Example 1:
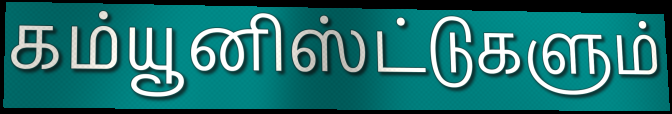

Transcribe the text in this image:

கம்யூனிஸ்ட்டுகளும்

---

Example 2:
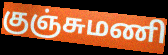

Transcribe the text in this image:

குஞ்சுமணி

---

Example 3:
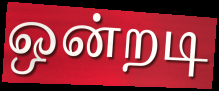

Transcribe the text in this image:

ஒன்றடி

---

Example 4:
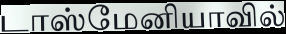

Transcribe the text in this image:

டாஸ்மேனியாவில்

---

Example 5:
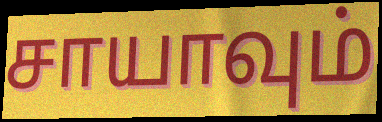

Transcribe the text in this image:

சாயாவும்